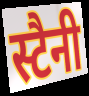
स्टैनी